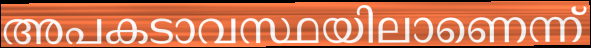
അപകടാവസ്ഥയിലാണെന്ന്